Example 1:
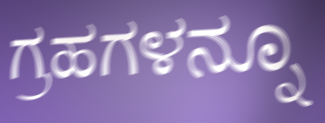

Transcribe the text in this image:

ಗ್ರಹಗಳನ್ನೂ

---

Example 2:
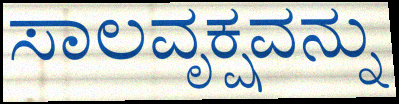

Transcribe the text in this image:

ಸಾಲವೃಕ್ಷವನ್ನು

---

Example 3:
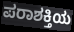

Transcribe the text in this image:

ಪರಾಶಕ್ತಿಯ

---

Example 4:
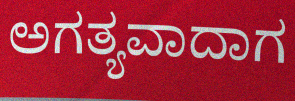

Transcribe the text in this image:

ಅಗತ್ಯವಾದಾಗ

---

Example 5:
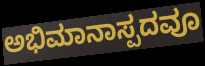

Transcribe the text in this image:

ಅಭಿಮಾನಾಸ್ಪದವೂ